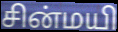
சின்மயி